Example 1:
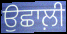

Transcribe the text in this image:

ਉਛਾਲ਼ੀ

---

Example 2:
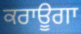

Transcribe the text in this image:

ਕਰਾਊਗਾ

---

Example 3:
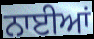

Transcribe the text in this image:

ਨਾਈਆਂ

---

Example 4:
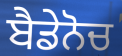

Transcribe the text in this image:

ਬੈਡੇਨੋਚ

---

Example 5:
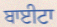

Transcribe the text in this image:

ਬਾਈਟਾ